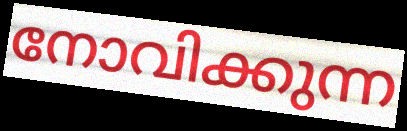
നോവിക്കുന്ന